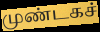
முண்டகச்